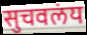
सुचवलंय